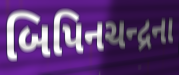
બિપિનચન્દ્રના